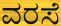
ವರಸೆ